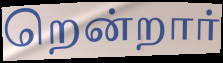
றென்றார்